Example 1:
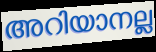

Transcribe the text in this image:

അറിയാനല്ല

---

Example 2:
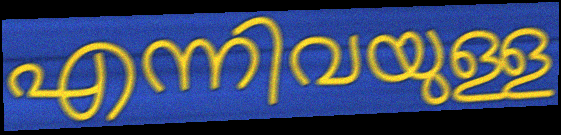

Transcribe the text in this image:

എന്നിവയുള്ള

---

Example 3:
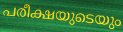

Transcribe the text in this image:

പരീക്ഷയുടെയും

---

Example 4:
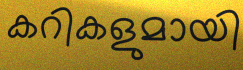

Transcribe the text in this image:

കറികളുമായി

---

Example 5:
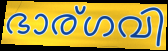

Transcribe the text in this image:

ഭാര്ഗവി